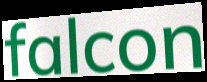
falcon